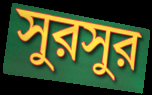
সুরসুর